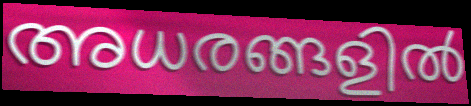
അധരങ്ങളിൽ